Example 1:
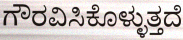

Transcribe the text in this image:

ಗೌರವಿಸಿಕೊಳ್ಳುತ್ತದೆ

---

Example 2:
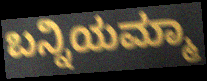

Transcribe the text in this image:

ಬನ್ನಿಯಮ್ಮಾ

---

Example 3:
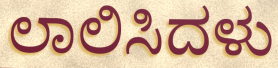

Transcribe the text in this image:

ಲಾಲಿಸಿದಳು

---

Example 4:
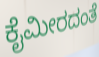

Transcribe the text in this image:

ಕೈಮೀರದಂತೆ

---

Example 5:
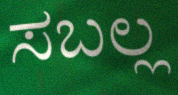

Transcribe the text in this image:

ಸಬಲ್ಲ